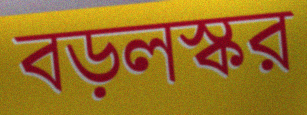
বড়লস্কর